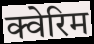
क्वेरिम